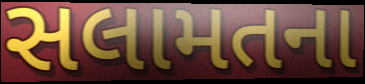
સલામતના